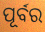
ପୂର୍ବର